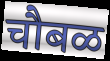
चौबळ